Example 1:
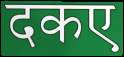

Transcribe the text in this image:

दकए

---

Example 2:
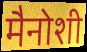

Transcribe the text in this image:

मैनोशी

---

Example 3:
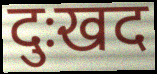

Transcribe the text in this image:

दुःखद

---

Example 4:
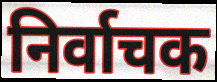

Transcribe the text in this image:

निर्वाचक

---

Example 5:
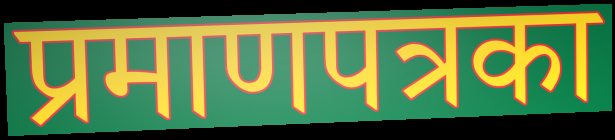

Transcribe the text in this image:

प्रमाणपत्रका